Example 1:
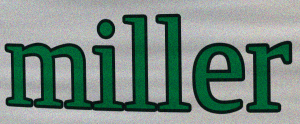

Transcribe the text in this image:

miller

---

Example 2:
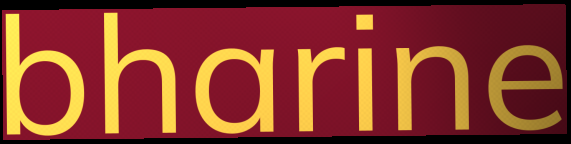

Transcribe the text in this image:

bharine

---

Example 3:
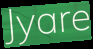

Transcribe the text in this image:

Jyare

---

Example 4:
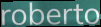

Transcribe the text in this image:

roberto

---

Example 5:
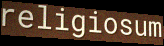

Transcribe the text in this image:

religiosum